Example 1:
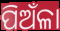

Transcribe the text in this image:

ପିଅଁଳା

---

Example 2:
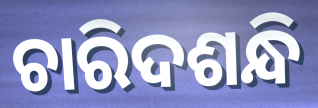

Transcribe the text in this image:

ଚାରିଦଶନ୍ଧି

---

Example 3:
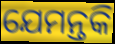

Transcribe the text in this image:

ଯେମନ୍ତକି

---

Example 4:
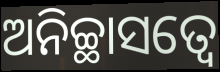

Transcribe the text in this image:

ଅନିଚ୍ଛାସତ୍ୱେ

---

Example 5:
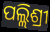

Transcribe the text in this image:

ପଲ୍ଲିଶ୍ରୀ